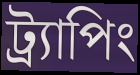
ট্র্যাপিং